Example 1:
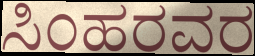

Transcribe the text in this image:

ಸಿಂಹರವರ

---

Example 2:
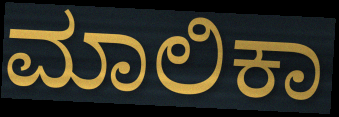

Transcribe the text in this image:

ಮಾಲಿಕಾ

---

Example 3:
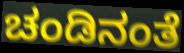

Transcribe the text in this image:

ಚಂಡಿನಂತೆ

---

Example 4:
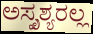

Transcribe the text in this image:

ಅಸ್ಪೃಶ್ಯರಲ್ಲ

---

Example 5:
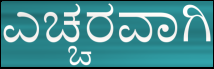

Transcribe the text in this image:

ಎಚ್ಚರವಾಗಿ